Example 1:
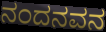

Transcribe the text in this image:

ನಂದನವನ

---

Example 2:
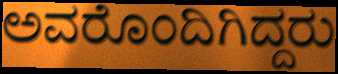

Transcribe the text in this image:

ಅವರೊಂದಿಗಿದ್ದರು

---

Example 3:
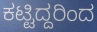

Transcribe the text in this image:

ಕಟ್ಟಿದ್ದರಿಂದ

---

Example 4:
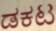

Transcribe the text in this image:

ಡಕಟ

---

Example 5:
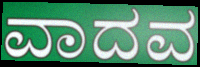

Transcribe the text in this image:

ವಾದವ